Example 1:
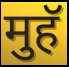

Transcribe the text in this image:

मुहॅ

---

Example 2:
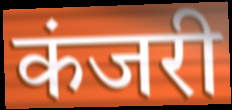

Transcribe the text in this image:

कंजरी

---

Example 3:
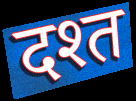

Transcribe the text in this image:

दश्त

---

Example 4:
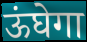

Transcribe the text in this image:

ऊंघेगा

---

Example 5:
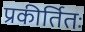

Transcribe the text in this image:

प्रकीर्तितः